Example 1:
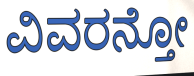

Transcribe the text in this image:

ವಿವರನ್ತೋ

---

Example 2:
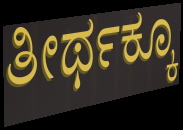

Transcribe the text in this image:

ತೀರ್ಥಕ್ಕೂ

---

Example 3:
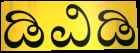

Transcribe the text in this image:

ಡಿವಿಡಿ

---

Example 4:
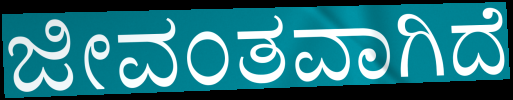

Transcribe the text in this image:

ಜೀವಂತವಾಗಿದೆ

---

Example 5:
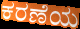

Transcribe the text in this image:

ಕರಣೆಯ